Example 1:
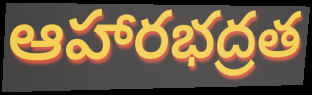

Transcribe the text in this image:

ఆహారభద్రత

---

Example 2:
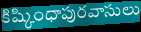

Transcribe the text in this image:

కిష్కింధాపురవాసులు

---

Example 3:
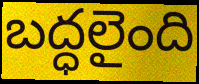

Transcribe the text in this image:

బద్ధలైంది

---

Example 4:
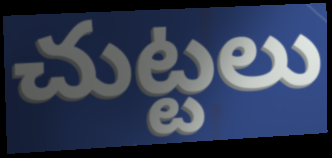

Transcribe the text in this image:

చుట్టలు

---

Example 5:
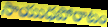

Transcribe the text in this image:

సాయుధపోరాటం